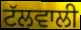
ਟੱਲਵਾਲੀ